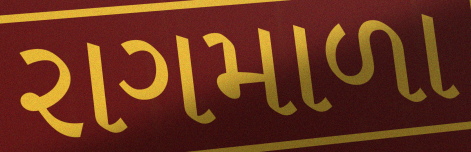
રાગમાળા